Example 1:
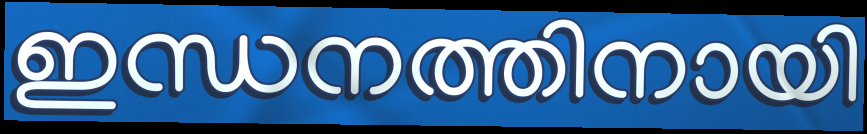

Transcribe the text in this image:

ഇന്ധനത്തിനായി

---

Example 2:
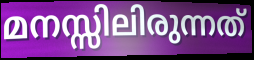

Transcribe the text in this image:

മനസ്സിലിരുന്നത്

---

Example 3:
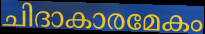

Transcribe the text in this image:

ചിദാകാരമേകം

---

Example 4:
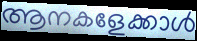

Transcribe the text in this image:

ആനകളേക്കാൾ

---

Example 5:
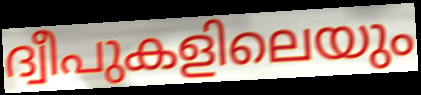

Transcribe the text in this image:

ദ്വീപുകളിലെയും